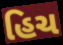
હિચ